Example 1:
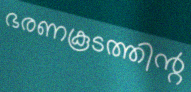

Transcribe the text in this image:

ഭരണകൂടത്തിന്റ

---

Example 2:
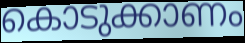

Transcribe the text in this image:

കൊടുക്കാണം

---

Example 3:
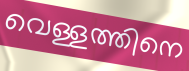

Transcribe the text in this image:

വെള്ളത്തിനെ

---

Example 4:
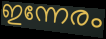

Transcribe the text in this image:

ഇന്നേരം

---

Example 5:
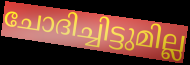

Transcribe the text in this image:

ചോദിച്ചിട്ടുമില്ല